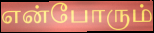
என்போரும்